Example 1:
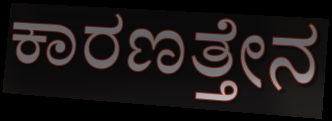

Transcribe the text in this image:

ಕಾರಣತ್ತೇನ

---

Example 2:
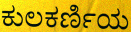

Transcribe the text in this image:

ಕುಲಕರ್ಣಿಯ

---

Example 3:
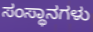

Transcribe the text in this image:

ಸಂಸ್ಥಾನಗಳು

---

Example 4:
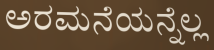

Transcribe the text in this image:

ಅರಮನೆಯನ್ನೆಲ್ಲ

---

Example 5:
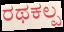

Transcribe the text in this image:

ರಥಕಲ್ಪ